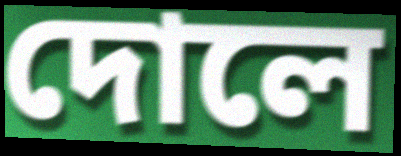
দোলে